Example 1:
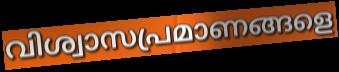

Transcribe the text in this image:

വിശ്വാസപ്രമാണങ്ങളെ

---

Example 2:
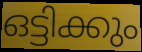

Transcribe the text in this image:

ഒട്ടിക്കും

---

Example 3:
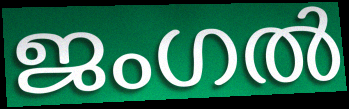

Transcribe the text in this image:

ജംഗൽ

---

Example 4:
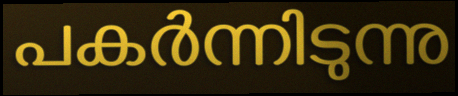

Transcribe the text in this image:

പകർന്നിടുന്നു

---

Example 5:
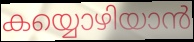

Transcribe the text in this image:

കയ്യൊഴിയാൻ